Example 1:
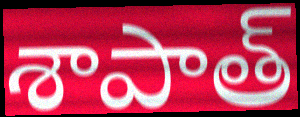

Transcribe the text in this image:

శాపాత్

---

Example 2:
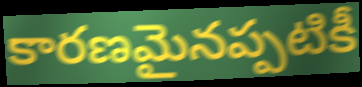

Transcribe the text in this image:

కారణమైనప్పటికీ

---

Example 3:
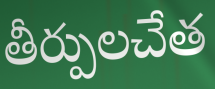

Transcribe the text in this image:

తీర్పులచేత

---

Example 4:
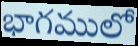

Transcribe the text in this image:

భాగములో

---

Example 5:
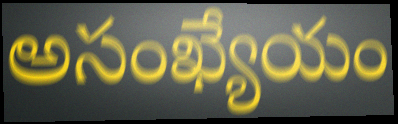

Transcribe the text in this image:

అసంఖ్యేయం